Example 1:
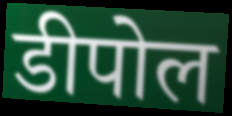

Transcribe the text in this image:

डीपोल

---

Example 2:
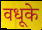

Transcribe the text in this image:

वधूके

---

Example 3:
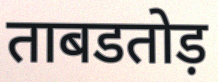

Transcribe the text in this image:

ताबडतोड़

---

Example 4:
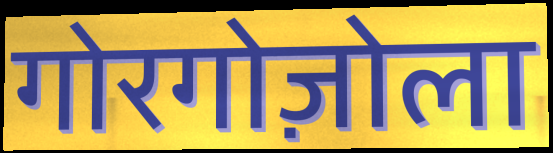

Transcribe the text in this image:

गोरगोज़ोला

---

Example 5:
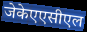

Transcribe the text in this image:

जेकेएएसीएल